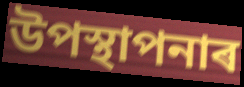
উপস্থাপনাৰ